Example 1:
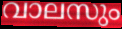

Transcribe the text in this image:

വാലസും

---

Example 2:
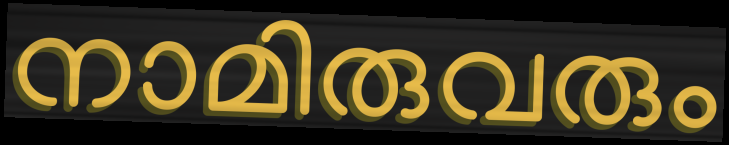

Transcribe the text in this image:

നാമിരുവരും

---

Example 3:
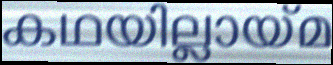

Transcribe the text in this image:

കഥയില്ലായ്മ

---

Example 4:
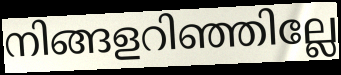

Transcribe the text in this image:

നിങ്ങളറിഞ്ഞില്ലേ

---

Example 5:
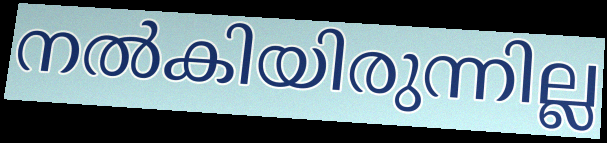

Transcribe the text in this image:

നൽകിയിരുന്നില്ല